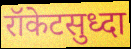
रॉकेटसुध्दा